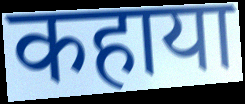
कहाया